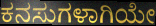
ಕನಸುಗಳಾಗಿಯೇ